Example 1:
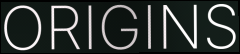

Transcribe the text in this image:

ORIGINS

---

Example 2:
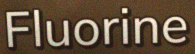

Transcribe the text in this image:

Fluorine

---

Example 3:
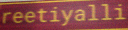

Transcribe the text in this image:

reetiyalli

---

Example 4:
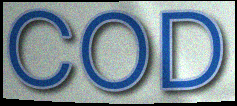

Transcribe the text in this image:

COD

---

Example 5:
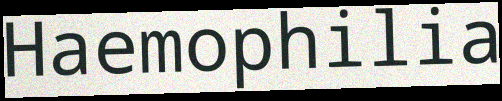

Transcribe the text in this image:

Haemophilia